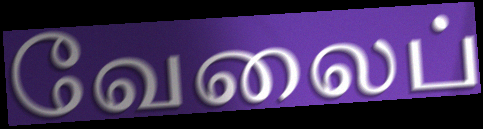
வேலைப்